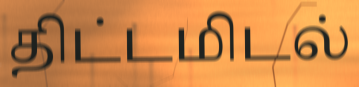
திட்டமிடல்